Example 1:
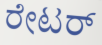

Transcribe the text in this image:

ರೇಟರ್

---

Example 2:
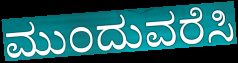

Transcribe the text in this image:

ಮುಂದುವರೆಸಿ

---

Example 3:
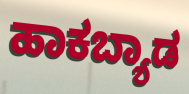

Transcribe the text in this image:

ಹಾಕಬ್ಯಾಡ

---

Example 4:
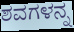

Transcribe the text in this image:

ಶವಗಳನ್ನ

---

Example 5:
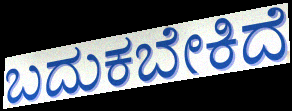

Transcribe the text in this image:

ಬದುಕಬೇಕಿದೆ